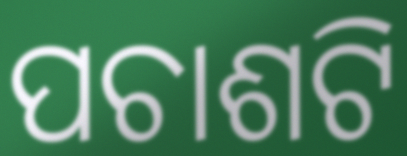
ପଚାଶଟି